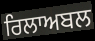
ਰਿਲਾਅਬਲ